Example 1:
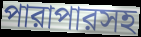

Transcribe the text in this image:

পারাপারসহ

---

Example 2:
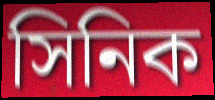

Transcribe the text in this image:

সিনিক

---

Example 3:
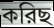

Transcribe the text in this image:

করিছ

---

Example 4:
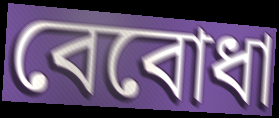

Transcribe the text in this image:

বেবোধা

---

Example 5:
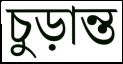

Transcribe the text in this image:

চুড়ান্ত